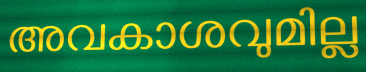
അവകാശവുമില്ല